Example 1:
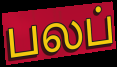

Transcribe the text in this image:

பலப்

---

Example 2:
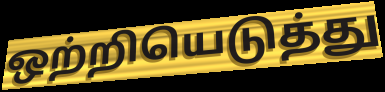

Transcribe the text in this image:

ஒற்றியெடுத்து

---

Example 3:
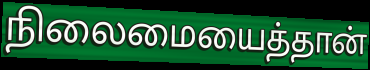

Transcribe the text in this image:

நிலைமையைத்தான்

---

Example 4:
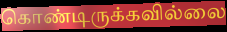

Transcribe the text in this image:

கொண்டிருக்கவில்லை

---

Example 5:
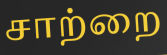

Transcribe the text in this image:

சாற்றை